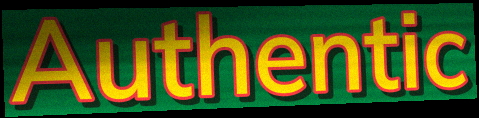
Authentic